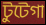
টুটেগা